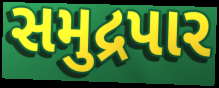
સમુદ્રપાર